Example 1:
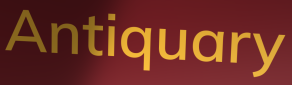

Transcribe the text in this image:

Antiquary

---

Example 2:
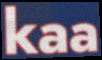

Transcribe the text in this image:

kaa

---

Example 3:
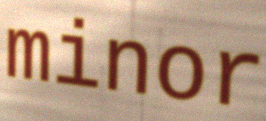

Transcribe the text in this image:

minor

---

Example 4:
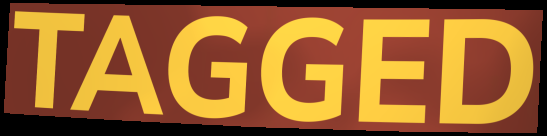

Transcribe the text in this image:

TAGGED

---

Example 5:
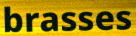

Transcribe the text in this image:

brasses